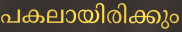
പകലായിരിക്കും